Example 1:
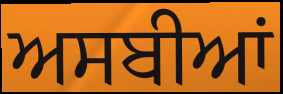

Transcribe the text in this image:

ਅਸਬੀਆਂ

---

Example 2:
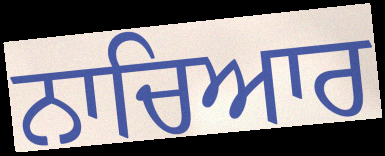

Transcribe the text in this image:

ਨਾਚਿਆਰ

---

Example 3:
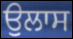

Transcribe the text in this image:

ਉਲਾਸ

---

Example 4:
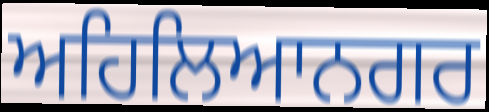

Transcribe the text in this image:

ਅਹਿਲਿਆਨਗਰ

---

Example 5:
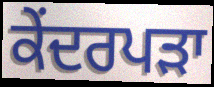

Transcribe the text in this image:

ਕੇਂਦਰਪੜਾ